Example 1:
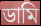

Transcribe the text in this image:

ডামি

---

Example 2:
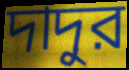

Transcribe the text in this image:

দাদুর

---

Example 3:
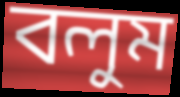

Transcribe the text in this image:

বলুম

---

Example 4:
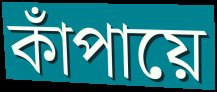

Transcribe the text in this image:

কাঁপায়ে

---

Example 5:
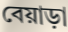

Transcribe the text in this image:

বেয়াড়া